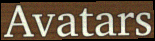
Avatars